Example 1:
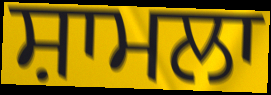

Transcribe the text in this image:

ਸ਼ਾਮਲਾ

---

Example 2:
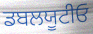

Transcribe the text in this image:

ਡਬਲਯੂਟੀਓ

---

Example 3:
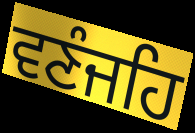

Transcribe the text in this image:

ਵਣੰਜਹਿ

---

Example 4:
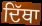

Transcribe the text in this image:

ਦਿੱਥਾ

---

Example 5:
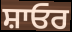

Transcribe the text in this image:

ਸ਼ਾਓਰ